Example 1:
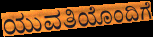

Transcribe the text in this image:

ಯುವತಿಯೊಂದಿಗೆ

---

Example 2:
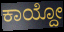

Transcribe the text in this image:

ಕಾಯ್ದೋ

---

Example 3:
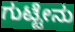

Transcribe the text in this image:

ಗುಟ್ಟೇನು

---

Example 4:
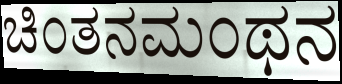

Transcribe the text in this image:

ಚಿಂತನಮಂಥನ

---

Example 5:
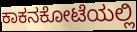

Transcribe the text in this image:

ಕಾಕನಕೋಟೆಯಲ್ಲಿ